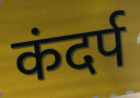
कंदर्प